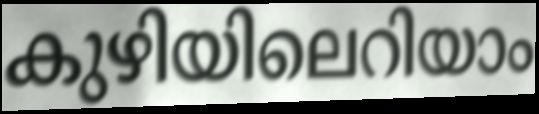
കുഴിയിലെറിയാം